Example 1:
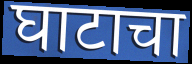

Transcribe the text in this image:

घाटाचा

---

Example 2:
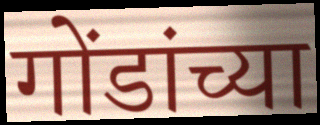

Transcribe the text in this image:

गोंडांच्या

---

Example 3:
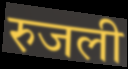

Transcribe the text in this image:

रुजली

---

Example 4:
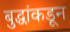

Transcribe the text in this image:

बुद्धांकडून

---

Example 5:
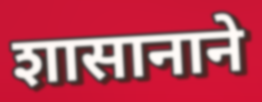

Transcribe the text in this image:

शासानाने